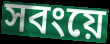
সবংয়ে